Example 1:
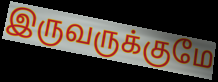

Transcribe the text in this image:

இருவருக்குமே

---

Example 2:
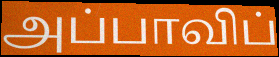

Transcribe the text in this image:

அப்பாவிப்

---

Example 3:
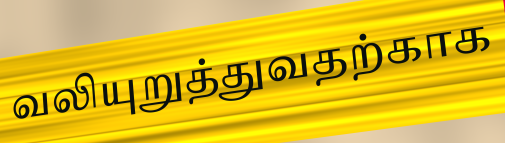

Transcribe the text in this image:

வலியுறுத்துவதற்காக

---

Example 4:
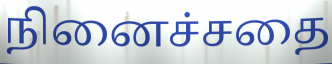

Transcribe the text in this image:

நினைச்சதை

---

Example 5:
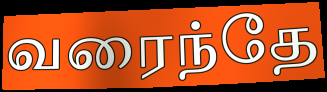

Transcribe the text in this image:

வரைந்தே